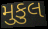
મુકુલ